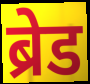
ब्रेड